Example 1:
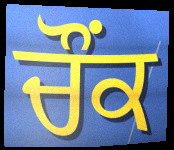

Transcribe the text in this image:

ਚੌਂਕ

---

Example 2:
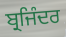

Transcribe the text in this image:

ਬ੍ਰਜਿੰਦਰ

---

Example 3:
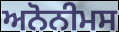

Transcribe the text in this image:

ਅਨੋਨੀਮਸ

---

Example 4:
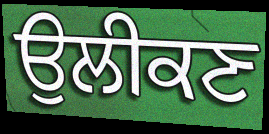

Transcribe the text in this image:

ਉਲੀਕਣ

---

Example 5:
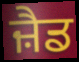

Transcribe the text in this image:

ਜ਼ੈਡ